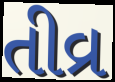
તીવ્ર